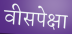
वीसपेक्षा